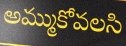
అమ్ముకోవలసి